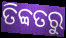
ତିବ୍ବତରୁ